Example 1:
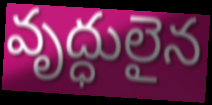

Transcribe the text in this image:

వృద్ధులైన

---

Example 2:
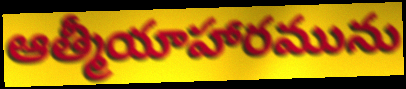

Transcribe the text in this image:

ఆత్మీయాహారమును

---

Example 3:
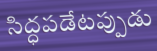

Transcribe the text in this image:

సిద్ధపడేటప్పుడు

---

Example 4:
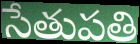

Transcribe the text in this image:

సేతుపతి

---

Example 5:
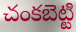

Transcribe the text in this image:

చంకబెట్టి